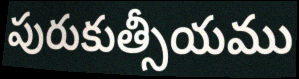
పురుకుత్సీయము